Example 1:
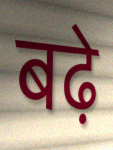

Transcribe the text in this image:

बढ़े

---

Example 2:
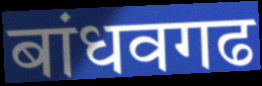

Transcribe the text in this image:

बांधवगढ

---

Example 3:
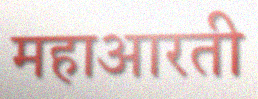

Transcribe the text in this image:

महाआरती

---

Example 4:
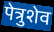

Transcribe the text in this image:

पेत्रुशेव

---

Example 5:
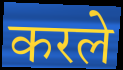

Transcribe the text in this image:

करले